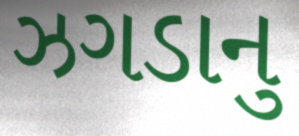
ઝગડાનુ